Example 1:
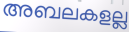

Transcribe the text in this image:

അബലകളല്ല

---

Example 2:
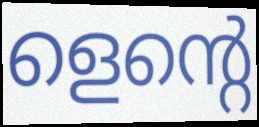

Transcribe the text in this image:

ളെന്റെ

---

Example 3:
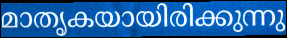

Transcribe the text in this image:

മാതൃകയായിരിക്കുന്നു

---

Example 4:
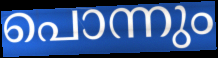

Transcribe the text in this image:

പൊന്നും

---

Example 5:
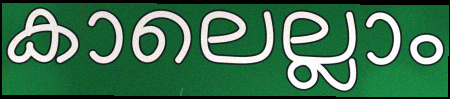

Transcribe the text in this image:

കാലെല്ലാം